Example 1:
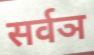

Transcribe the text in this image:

सर्वञ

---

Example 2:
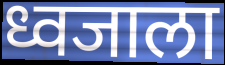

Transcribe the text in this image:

ध्वजाला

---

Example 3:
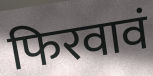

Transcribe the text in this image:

फिरवावं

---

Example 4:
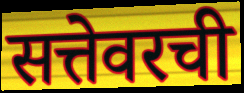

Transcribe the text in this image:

सत्तेवरची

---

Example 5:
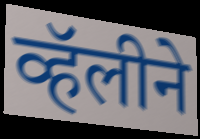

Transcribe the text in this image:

व्हॅलीने